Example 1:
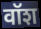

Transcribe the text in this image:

वॉश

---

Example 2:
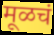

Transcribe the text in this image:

मूळचं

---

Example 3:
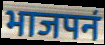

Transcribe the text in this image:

भाजपनं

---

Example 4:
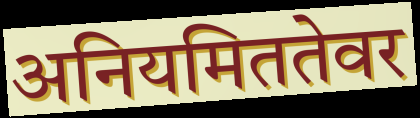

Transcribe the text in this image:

अनियमिततेवर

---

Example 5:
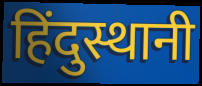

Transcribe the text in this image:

हिंदुस्थानी